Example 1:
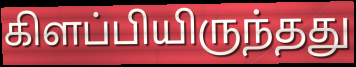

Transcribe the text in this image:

கிளப்பியிருந்தது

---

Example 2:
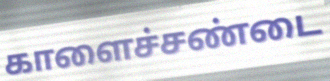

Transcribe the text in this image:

காளைச்சண்டை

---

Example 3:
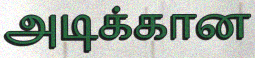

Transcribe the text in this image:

அடிக்கான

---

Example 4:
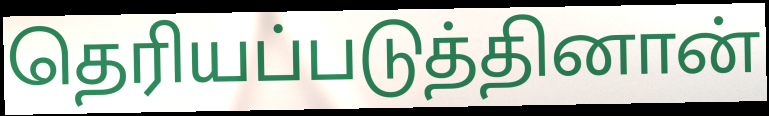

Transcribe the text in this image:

தெரியப்படுத்தினான்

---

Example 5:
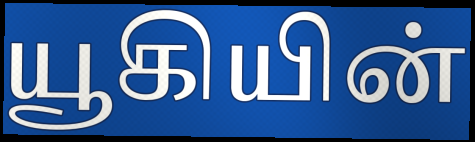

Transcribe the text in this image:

யூகியின்